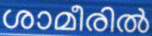
ശാമീരിൽ